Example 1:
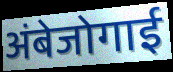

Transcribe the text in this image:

अंबेजोगाई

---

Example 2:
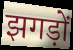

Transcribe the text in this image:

झगड़ों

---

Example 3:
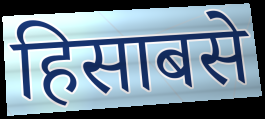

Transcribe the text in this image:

हिसाबसे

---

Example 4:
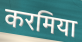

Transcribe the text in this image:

करमिया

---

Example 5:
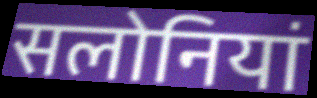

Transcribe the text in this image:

सलोनियां